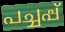
പച്ചപ്പ്